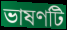
ভাষণটি